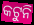
କଟୁନି